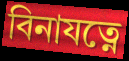
বিনাযত্নে